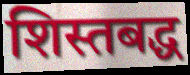
शिस्तबद्ध